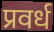
प्रवर्ध